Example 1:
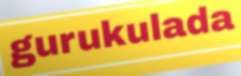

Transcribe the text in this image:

gurukulada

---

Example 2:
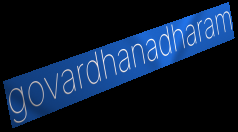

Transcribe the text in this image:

govardhanadharam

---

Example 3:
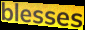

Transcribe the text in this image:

blesses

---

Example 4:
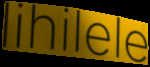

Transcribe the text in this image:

lihilele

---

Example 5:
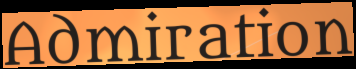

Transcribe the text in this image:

Admiration